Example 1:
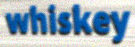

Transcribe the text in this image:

whiskey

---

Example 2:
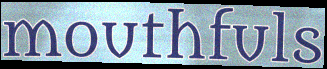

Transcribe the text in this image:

mouthfuls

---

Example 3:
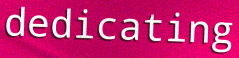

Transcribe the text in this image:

dedicating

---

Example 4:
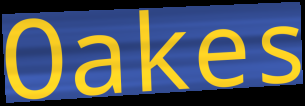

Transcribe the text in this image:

Oakes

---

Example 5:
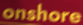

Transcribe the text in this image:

onshore